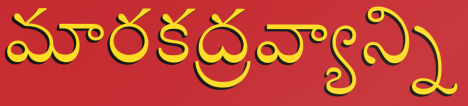
మారకద్రవ్యాన్ని